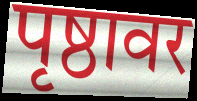
पृष्ठावर